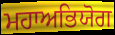
ਮਹਾਅਭਿਯੋਗ